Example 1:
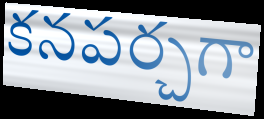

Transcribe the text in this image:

కనపర్చగా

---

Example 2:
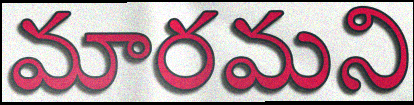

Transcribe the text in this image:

మారమని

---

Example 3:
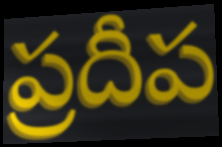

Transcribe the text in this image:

ప్రదీప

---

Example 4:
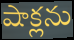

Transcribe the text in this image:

షాక్లను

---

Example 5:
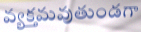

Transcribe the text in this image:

వ్యక్తమవుతుండగా